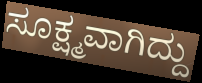
ಸೂಕ್ಷ್ಮವಾಗಿದ್ದು